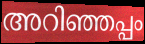
അറിഞ്ഞപ്പം